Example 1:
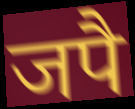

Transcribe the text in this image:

जपै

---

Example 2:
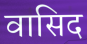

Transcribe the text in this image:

वासिद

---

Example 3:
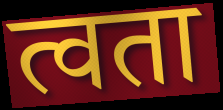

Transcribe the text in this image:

त्वता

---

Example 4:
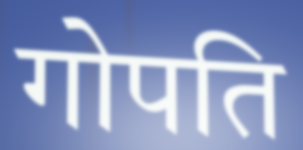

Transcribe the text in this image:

गोपति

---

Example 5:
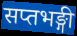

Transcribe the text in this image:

सप्तभङ्गी